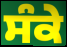
ਸੰਕੇ